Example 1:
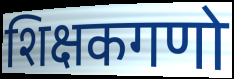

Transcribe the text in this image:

शिक्षकगणो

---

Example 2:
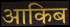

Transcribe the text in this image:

आकिब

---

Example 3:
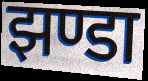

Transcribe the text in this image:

झण्डा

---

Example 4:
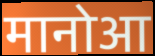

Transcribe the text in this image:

मानोआ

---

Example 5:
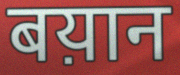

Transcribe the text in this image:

बय़ान